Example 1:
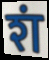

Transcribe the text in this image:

शं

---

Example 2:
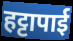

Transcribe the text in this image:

हट्टापाई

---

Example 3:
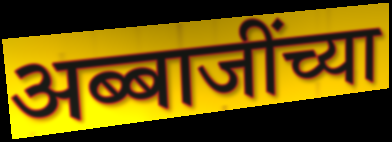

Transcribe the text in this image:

अब्बाजींच्या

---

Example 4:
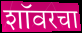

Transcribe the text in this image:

शॉवरचा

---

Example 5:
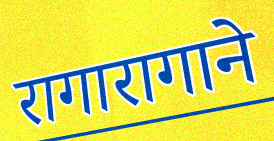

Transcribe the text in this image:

रागारागाने